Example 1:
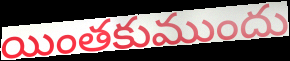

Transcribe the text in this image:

యింతకుముందు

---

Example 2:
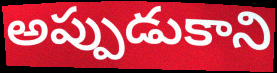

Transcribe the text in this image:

అప్పుడుకాని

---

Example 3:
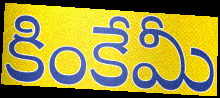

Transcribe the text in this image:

కింకేమీ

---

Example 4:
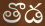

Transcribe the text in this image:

తొడ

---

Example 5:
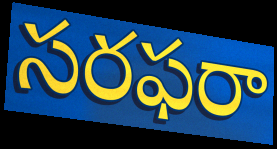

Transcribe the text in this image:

సరఫరా